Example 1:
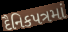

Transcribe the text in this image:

દૈનિકપત્રમાં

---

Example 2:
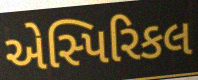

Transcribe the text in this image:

એસ્પિરિકલ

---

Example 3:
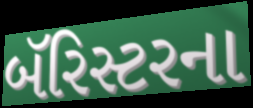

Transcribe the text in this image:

બૅરિસ્ટરના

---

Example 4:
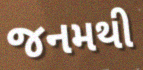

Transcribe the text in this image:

જનમથી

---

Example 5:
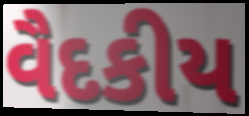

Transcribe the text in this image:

વૈદકીય